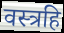
वस्त्रहि